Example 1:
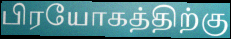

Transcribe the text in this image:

பிரயோகத்திற்கு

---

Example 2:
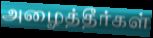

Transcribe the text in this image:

அழைத்தீர்கள்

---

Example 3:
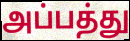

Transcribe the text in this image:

அப்பத்து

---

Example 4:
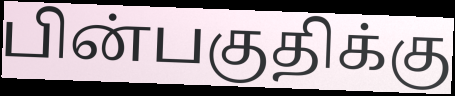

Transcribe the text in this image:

பின்பகுதிக்கு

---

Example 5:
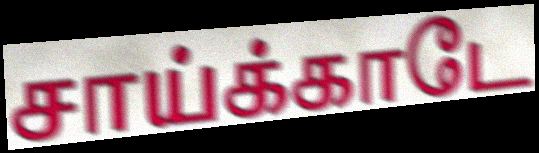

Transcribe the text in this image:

சாய்க்காடே